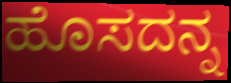
ಹೊಸದನ್ನ